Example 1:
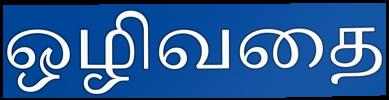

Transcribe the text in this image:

ஒழிவதை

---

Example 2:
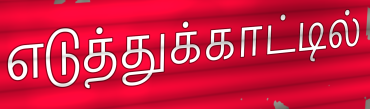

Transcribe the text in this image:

எடுத்துக்காட்டில்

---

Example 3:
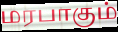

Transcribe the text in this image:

மரபாகும்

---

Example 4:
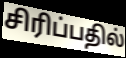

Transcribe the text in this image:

சிரிப்பதில்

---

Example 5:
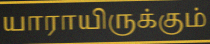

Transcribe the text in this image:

யாராயிருக்கும்